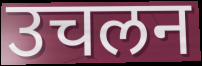
उचलन